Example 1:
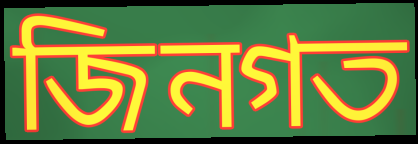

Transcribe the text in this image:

জিনগত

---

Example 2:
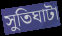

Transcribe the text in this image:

সুতিঘাটা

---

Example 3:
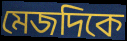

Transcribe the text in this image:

মেজদিকে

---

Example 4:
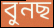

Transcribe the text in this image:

বুনছ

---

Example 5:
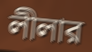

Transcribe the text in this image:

লীলার